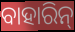
ବାହାରିନ୍